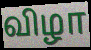
விழா